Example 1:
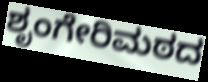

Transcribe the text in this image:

ಶೃಂಗೇರಿಮಠದ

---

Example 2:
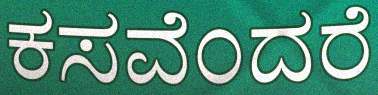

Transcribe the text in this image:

ಕಸವೆಂದರೆ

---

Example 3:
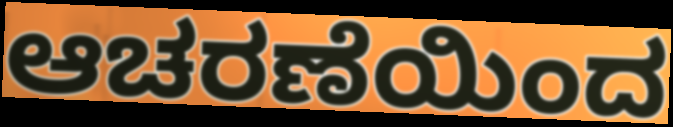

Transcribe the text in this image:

ಆಚರಣೆಯಿಂದ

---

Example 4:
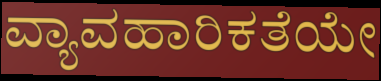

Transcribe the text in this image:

ವ್ಯಾವಹಾರಿಕತೆಯೇ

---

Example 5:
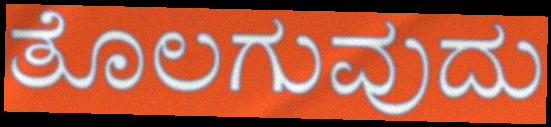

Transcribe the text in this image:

ತೊಲಗುವುದು